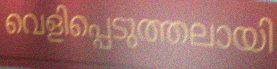
വെളിപ്പെടുത്തലായി